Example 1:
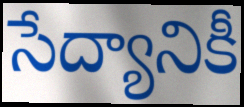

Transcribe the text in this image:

సేద్యానికీ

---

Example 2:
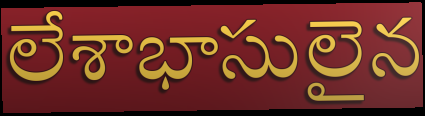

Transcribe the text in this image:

లేశాభాసులైన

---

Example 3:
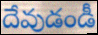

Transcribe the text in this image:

దేవుడండీ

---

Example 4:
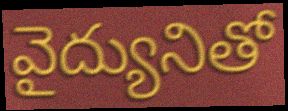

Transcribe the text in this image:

వైద్యునితో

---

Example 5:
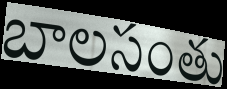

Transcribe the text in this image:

బాలసంతు